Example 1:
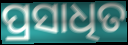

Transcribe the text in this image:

ପ୍ରସାଧିତ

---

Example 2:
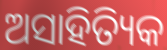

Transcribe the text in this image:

ଅସାହିତ୍ୟିକ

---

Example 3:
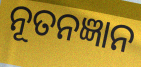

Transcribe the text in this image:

ନୂତନଜ୍ଞାନ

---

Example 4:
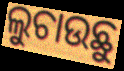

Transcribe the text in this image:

ଲୁଚାଉଛୁ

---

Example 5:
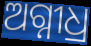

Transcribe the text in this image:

ଅଗ୍ନୀଧ୍ର